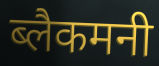
ब्लैकमनी